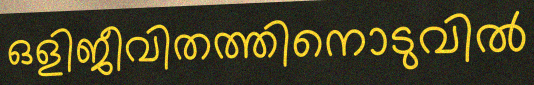
ഒളിജീവിതത്തിനൊടുവിൽ